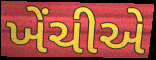
ખેંચીએ